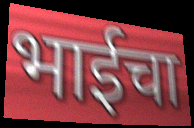
भाईचा